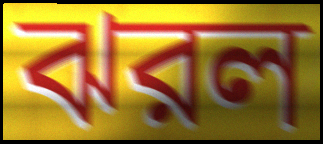
ঝরল